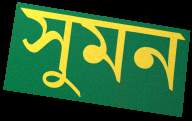
সুমন